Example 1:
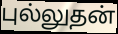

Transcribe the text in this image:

புல்லுதன்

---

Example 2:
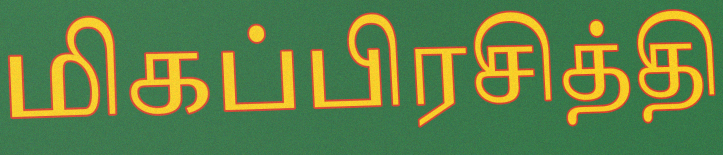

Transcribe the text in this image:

மிகப்பிரசித்தி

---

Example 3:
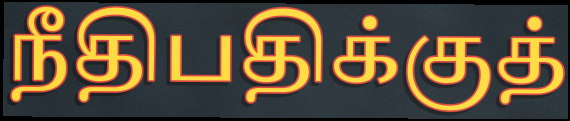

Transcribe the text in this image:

நீதிபதிக்குத்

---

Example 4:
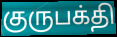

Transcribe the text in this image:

குருபக்தி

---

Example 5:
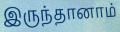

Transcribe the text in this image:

இருந்தானாம்